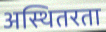
अस्थितरता